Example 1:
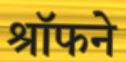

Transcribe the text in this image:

श्रॉफने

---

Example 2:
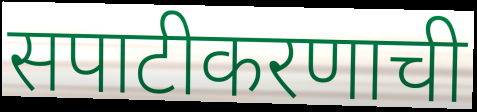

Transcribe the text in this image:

सपाटीकरणाची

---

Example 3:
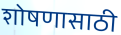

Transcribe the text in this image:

शोषणासाठी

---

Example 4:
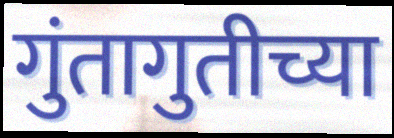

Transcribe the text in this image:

गुंतागुतीच्या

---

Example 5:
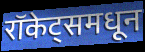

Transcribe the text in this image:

रॉकेट्समधून